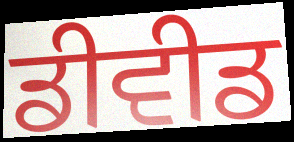
ਡੀਵੀਡ